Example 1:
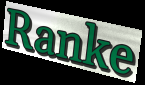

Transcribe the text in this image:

Ranke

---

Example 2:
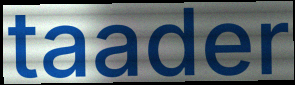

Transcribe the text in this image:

taader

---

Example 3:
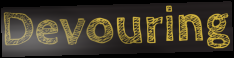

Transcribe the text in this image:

Devouring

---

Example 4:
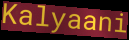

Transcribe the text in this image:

Kalyaani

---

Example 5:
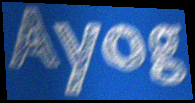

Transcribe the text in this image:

Ayog